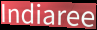
Indiaree